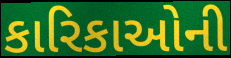
કારિકાઓની